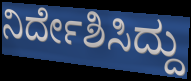
ನಿರ್ದೇಶಿಸಿದ್ದು